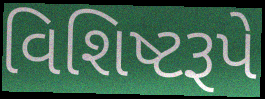
વિશિષ્ટરૂપે